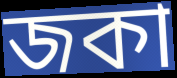
জকা